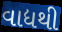
વાદ્યથી